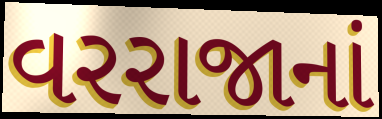
વરરાજાનાં